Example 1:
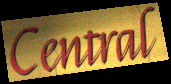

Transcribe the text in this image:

Central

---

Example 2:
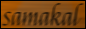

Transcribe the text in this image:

samakal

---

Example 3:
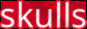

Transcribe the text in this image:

skulls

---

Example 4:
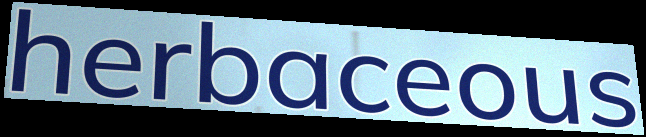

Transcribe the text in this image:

herbaceous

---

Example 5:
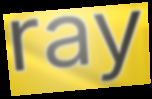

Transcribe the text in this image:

ray